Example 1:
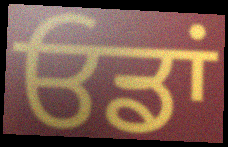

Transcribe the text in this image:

ਓਡਾਂ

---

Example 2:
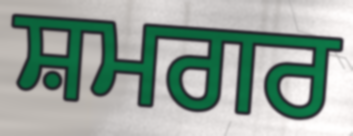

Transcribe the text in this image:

ਸ਼ਮਗਰ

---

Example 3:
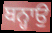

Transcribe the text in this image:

ਬਨ੍ਹਾਉ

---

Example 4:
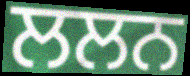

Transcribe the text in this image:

ਲਲਨ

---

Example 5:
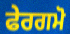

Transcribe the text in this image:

ਫੇਰਗਮੋ